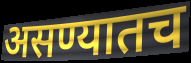
असण्यातच